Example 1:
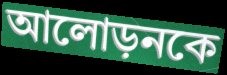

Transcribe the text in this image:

আলোড়নকে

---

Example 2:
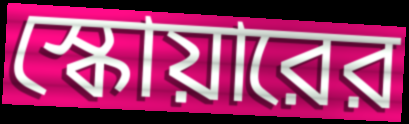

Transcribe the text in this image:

স্কোয়ারের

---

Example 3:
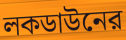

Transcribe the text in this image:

লকডাউনের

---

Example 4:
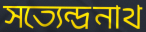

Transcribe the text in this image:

সত্যেন্দ্রনাথ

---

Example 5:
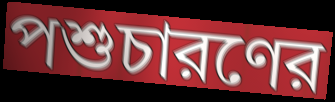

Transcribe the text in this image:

পশুচারণের